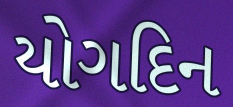
યોગદિન